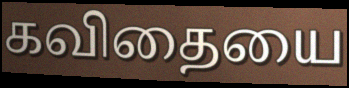
கவிதையை